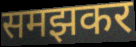
समझकर